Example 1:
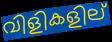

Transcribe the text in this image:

വിളികളില്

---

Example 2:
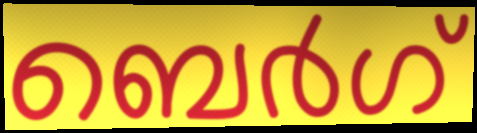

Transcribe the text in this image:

ബെർഗ്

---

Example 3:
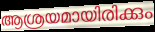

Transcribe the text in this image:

ആശ്രയമായിരിക്കും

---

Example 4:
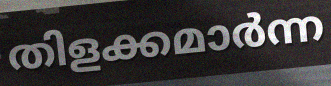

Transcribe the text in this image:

തിളക്കമാർന്ന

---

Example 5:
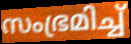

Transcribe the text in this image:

സംഭ്രമിച്ച്